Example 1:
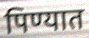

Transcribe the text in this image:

पिण्यात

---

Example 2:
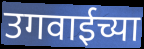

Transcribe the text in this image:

उगवाईच्या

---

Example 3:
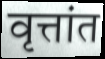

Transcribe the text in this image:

वृत्तांत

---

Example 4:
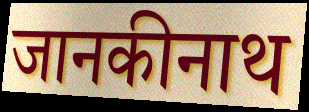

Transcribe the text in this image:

जानकीनाथ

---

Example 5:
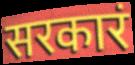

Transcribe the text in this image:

सरकारं